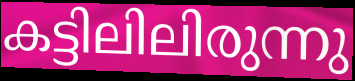
കട്ടിലിലിരുന്നു